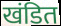
खंडित